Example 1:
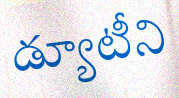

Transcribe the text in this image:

డ్యూటీని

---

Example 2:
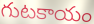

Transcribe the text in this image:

గుటకాయం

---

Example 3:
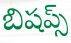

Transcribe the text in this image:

బిషప్స్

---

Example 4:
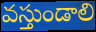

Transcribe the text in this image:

వస్తుండాలి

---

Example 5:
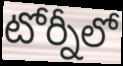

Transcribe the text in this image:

టోర్నీలో